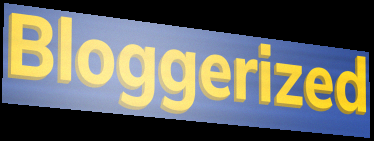
Bloggerized